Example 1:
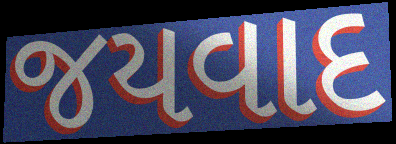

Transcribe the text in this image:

જયવાદ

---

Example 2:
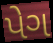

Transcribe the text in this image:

પેગ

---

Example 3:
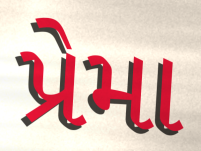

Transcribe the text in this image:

પ્રેમા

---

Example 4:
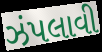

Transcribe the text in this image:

ઝંપલાવી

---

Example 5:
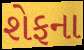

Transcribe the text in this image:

શેફના